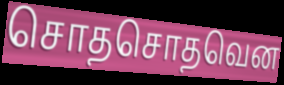
சொதசொதவென